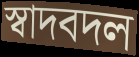
স্বাদবদল